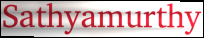
Sathyamurthy